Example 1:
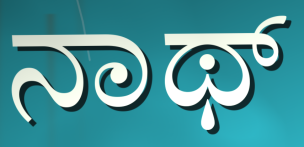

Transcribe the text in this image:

ನಾಥ್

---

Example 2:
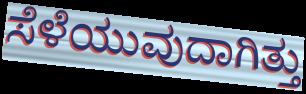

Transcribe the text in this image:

ಸೆಳೆಯುವುದಾಗಿತ್ತು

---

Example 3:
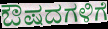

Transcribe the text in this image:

ಔಷದಗಳಿಗೆ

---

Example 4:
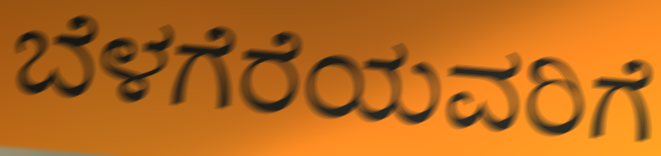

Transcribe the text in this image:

ಬೆಳಗೆರೆಯವರಿಗೆ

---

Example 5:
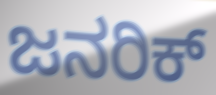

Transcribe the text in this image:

ಜನರಿಕ್